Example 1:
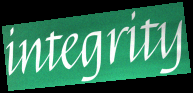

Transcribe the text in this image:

integrity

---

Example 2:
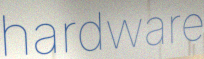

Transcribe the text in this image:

hardware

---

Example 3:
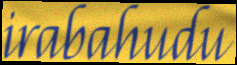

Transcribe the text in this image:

irabahudu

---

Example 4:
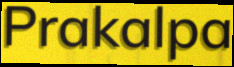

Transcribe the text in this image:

Prakalpa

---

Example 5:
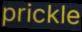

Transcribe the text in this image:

prickle